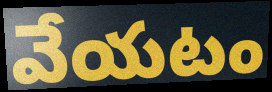
వేయటం